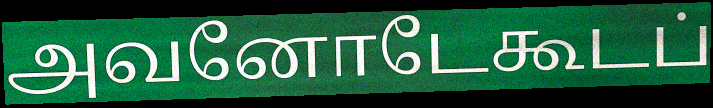
அவனோடேகூடப்